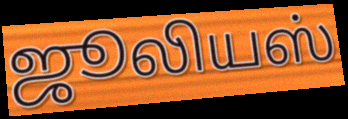
ஜூலியஸ்